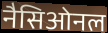
नैसिओनल